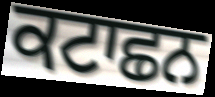
ਕਟਾਛਨ